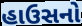
હાઉસનો